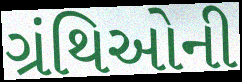
ગ્રંથિઓની